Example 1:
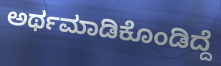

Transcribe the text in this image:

ಅರ್ಥಮಾಡಿಕೊಂಡಿದ್ದೆ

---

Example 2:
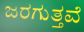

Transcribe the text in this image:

ಜರಗುತ್ತವೆ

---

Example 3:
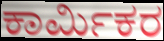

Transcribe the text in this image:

ಕಾರ್ಮಿಕರ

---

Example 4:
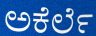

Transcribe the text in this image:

ಅಕೆರ್ಲೆ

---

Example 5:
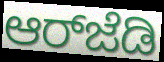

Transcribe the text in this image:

ಆರ್‌ಜೆಡಿ